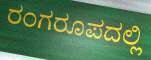
ರಂಗರೂಪದಲ್ಲಿ